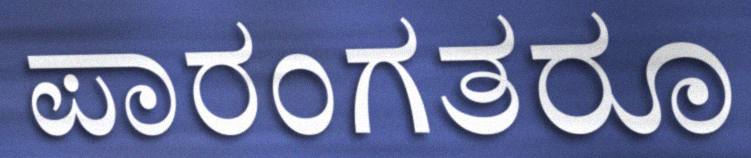
ಪಾರಂಗತರೂ